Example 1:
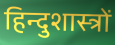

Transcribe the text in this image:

हिन्दुशास्त्रों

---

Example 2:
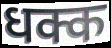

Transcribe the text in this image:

धक्क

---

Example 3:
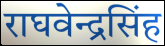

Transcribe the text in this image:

राघवेन्द्रसिंह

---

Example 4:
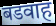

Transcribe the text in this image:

बडवाह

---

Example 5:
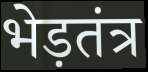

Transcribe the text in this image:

भेड़तंत्र